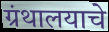
ग्रंथालयाचे